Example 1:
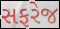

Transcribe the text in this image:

સફરેજ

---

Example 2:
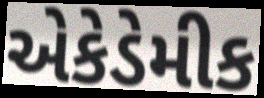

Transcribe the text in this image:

એકેડેમીક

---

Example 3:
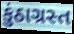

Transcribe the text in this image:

કુંઠાગ્રસ્ત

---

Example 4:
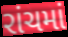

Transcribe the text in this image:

રાંચમાં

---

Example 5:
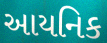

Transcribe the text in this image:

આયનિક